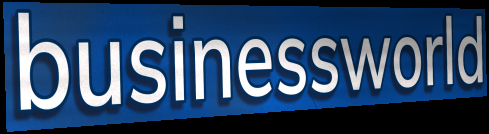
businessworld